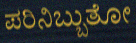
ಪರಿನಿಬ್ಬುತೋ